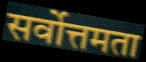
सर्वोत्तमता